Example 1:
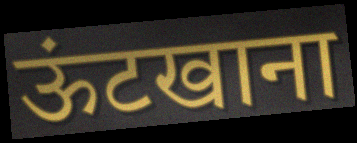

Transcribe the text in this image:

ऊंटखाना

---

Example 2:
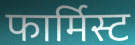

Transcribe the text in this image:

फार्मिस्ट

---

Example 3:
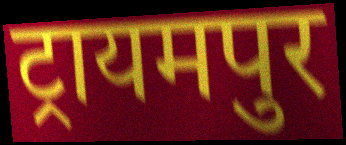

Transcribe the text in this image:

ट्रायमपुर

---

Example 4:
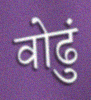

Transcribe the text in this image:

वोढुं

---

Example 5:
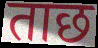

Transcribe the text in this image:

ताछ